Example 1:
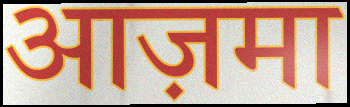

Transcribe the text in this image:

आज़मा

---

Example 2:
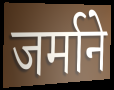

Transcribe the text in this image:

जर्माने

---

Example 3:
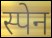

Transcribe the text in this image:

स्पेन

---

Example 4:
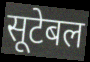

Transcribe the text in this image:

सूटेबल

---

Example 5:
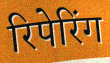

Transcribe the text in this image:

रिपेरिंग